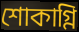
শোকাগ্নি